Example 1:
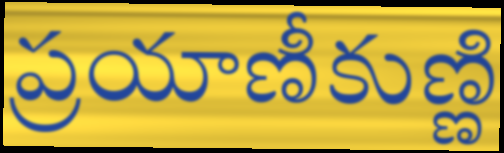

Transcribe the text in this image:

ప్రయాణీకుణ్ణి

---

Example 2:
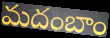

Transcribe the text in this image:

మదంబాం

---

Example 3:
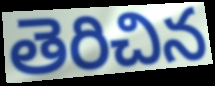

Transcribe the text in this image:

తెరిచిన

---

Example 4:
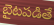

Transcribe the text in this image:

బైటపడితే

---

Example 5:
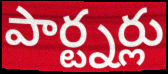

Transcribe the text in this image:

పార్ట్నర్లు